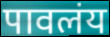
पावलंय